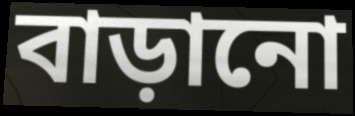
বাড়ানো